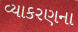
વ્યાકરણના